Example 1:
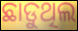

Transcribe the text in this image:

ଛାଡୁଥିଲ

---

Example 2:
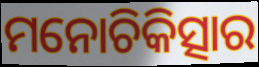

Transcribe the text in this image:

ମନୋଚିକିତ୍ସାର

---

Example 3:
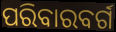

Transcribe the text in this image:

ପରିବାରବର୍ଗ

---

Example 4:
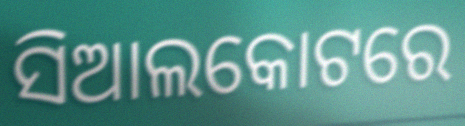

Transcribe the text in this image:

ସିଆଲକୋଟରେ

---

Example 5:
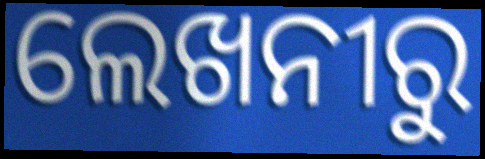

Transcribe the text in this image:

ଲେଖନୀରୁ